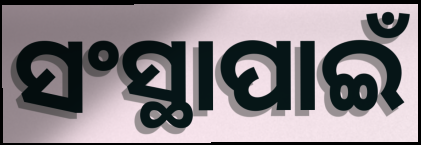
ସଂସ୍ଥାପାଇଁ